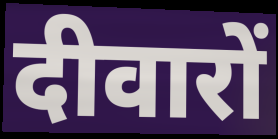
दीवारों